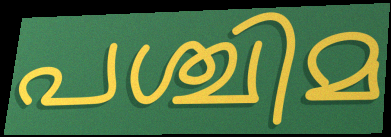
പശ്ചിമ